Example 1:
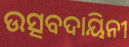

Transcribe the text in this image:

ଉତ୍ସବଦାୟିନୀ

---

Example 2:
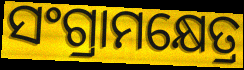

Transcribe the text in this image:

ସଂଗ୍ରାମକ୍ଷେତ୍ର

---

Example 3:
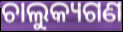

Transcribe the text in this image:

ଚାଲୁକ୍ୟଗଣ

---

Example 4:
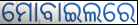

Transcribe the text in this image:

ମୋବାଇଲରେ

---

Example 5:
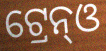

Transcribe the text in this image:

ଟ୍ରେନ୍ଓ